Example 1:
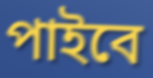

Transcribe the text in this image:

পাইবে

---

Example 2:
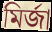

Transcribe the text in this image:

মির্জা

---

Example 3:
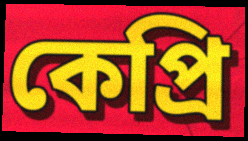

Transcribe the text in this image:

কেপ্রি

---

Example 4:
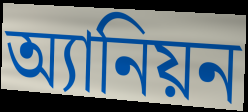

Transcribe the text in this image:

অ্যানিয়ন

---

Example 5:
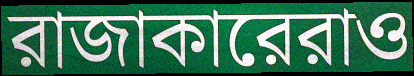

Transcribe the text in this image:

রাজাকারেরাও